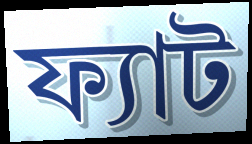
ফ্যাট